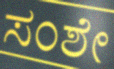
ಸಂಶೇ